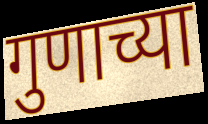
गुणाच्या